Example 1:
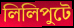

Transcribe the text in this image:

লিলিপুটে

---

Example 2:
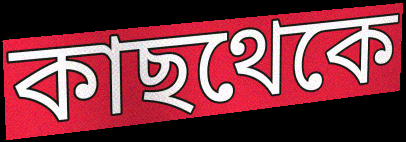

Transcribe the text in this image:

কাছথেকে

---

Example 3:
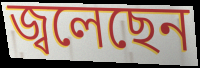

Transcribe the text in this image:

জ্বলেছেন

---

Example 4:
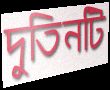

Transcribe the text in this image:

দুতিনটি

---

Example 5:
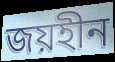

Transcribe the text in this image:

জয়হীন